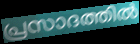
പ്രസാദത്തിൽ